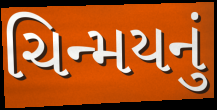
ચિન્મયનું